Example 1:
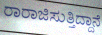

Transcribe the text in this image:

ರಾರಾಜಿಸುತ್ತಿದ್ದಾನೆ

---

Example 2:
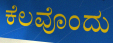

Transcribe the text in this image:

ಕೆಲವೊಂದು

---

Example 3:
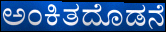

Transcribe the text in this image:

ಅಂಕಿತದೊಡನೆ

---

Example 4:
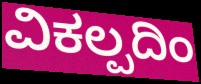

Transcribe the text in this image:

ವಿಕಲ್ಪದಿಂ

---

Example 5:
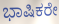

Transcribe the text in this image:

ಭಾಷಿಕರೇ